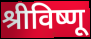
श्रीविष्णू